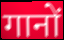
गानों